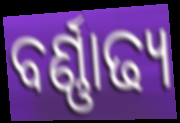
ବର୍ଣ୍ଣାଢ୍ୟ